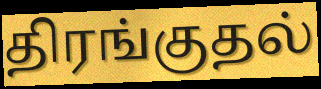
திரங்குதல்